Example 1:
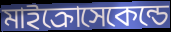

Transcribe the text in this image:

মাইক্রোসেকেন্ডে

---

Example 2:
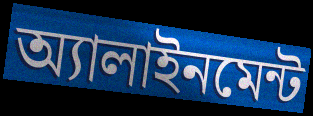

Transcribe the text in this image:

অ্যালাইনমেন্ট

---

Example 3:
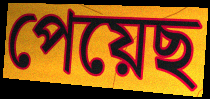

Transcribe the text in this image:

পেয়েছ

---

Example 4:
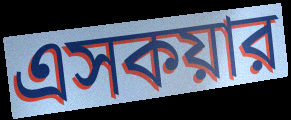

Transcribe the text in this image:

এসকয়ার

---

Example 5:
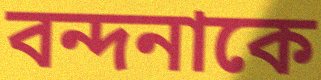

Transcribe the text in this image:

বন্দনাকে